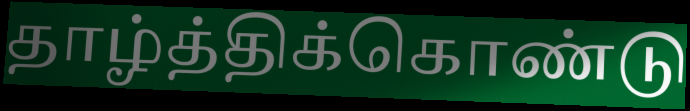
தாழ்த்திக்கொண்டு